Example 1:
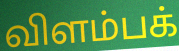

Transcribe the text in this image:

விளம்பக்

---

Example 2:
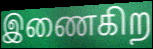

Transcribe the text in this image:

இணைகிற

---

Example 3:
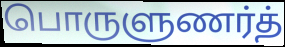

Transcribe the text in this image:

பொருளுணர்த்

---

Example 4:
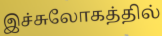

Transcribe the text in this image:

இச்சுலோகத்தில்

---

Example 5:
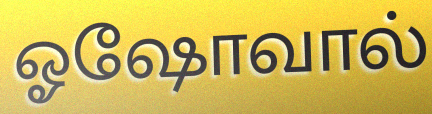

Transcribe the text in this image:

ஓஷோவால்